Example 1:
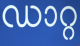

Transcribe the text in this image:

ഡാറ്റ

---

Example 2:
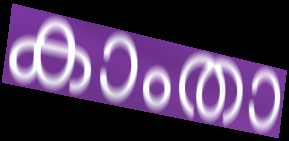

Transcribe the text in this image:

കാംതാ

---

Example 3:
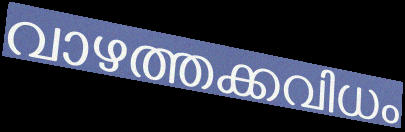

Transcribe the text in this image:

വാഴത്തക്കവിധം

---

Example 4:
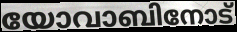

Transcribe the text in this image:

യോവാബിനോട്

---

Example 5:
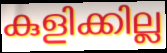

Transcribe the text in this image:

കുളിക്കില്ല